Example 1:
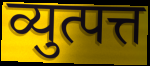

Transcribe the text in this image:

व्युत्पत्त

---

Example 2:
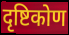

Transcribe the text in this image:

दृष्टिकोण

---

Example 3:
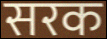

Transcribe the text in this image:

सरक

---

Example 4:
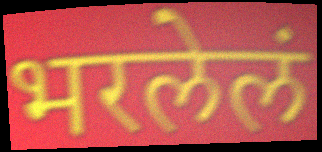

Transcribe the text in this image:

भरलेलं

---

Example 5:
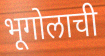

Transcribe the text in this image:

भूगोलाची